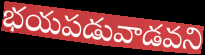
భయపడువాడవని